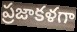
ప్రజాకళగా